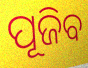
ପୂଜିବ